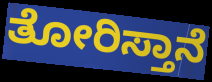
ತೋರಿಸ್ತಾನೆ